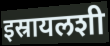
इस्रायलशी